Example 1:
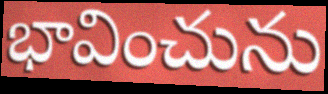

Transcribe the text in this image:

భావించును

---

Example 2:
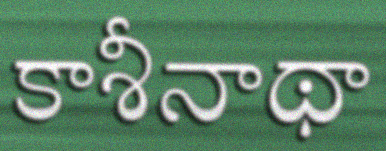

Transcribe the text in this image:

కాశీనాథా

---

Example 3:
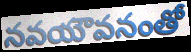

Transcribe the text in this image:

నవయౌవనంతో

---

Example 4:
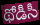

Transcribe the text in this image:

థోడీసీ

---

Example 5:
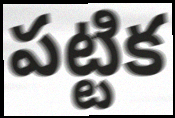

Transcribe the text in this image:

పట్టిక